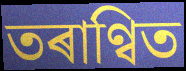
তৰাণ্বিত